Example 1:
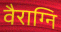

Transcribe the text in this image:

वैराग्नि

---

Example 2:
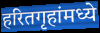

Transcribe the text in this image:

हरितगृहांमध्ये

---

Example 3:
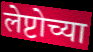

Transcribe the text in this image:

लेप्टोच्या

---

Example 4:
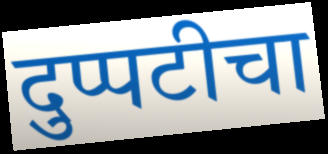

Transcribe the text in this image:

दुप्पटीचा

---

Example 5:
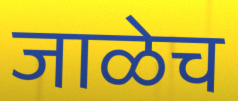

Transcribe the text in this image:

जाळेच